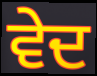
ਵੇਦ